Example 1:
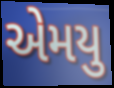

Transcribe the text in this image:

એમયુ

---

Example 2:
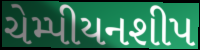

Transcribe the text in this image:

ચેમ્પીયનશીપ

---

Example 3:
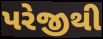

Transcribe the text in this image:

પરેજીથી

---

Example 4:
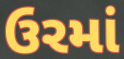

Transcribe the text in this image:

ઉરમાં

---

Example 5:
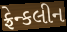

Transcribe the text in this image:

ફ્રેન્કલીન